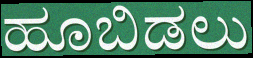
ಹೂಬಿಡಲು